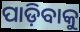
ପାଡ଼ିବାକୁ